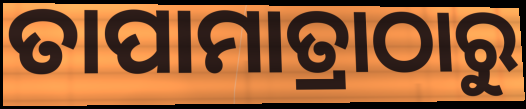
ତାପାମାତ୍ରାଠାରୁ